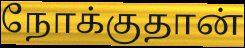
நோக்குதான்